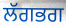
ਲੱਗਭਗ